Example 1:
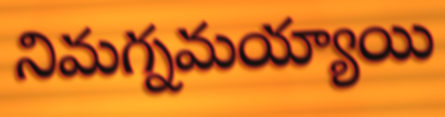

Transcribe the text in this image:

నిమగ్నమయ్యాయి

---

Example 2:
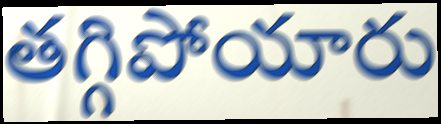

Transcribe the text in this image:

తగ్గిపోయారు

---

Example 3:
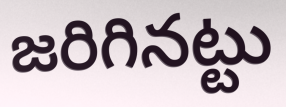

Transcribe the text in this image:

జరిగినట్టు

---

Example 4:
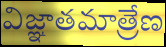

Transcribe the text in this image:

విజ్ఞాతమాత్రేణ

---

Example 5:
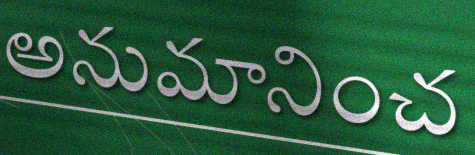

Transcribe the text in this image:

అనుమానించ